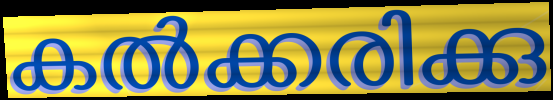
കൽക്കരിക്കു